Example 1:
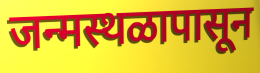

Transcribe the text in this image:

जन्मस्थळापासून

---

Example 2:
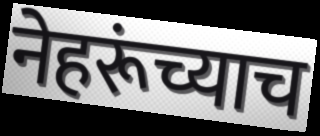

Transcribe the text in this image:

नेहरूंच्याच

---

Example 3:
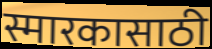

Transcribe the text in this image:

स्मारकासाठी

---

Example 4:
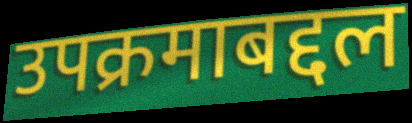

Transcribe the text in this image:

उपक्रमाबद्दल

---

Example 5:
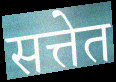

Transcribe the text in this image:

सत्तेत